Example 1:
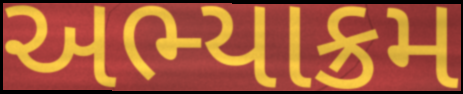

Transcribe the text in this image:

અભ્યાક્રમ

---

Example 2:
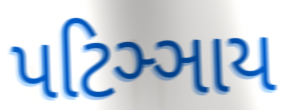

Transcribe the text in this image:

પટિઞ્ઞાય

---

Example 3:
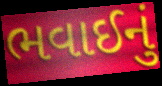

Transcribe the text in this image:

ભવાઈનું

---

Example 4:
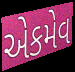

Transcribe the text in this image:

એકમેવ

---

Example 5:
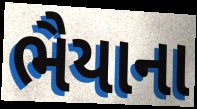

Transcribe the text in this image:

ભૈયાના